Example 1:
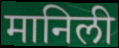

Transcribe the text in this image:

मानिली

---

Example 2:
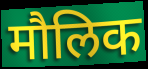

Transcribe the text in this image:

मौलिक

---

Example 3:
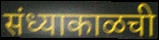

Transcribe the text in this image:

संध्याकाळची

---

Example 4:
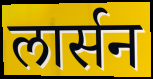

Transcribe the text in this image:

लार्सन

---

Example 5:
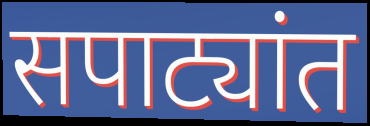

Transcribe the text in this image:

सपाट्यांत